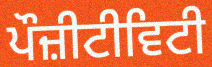
ਪੌਜ਼ੀਟੀਵਿਟੀ